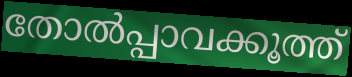
തോൽപ്പാവക്കൂത്ത്